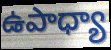
ఉపాధ్యా